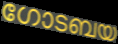
ഗോടബയ